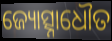
ଜ୍ୟୋତ୍ସ୍ନାଧୌତ